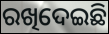
ରଖିଦେଇଛି